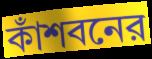
কাঁশবনের